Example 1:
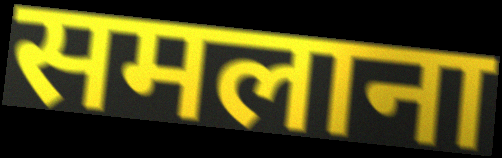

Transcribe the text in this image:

समलाना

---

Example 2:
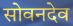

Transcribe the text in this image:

सोवनदेव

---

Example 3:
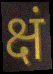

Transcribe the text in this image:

क्षं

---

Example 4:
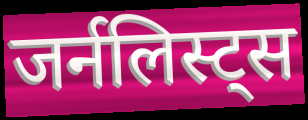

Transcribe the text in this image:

जर्नलिस्ट्स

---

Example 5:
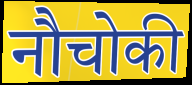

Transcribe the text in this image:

नौचोकी